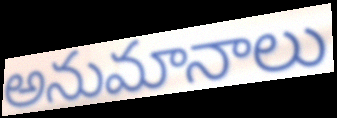
అనుమానాలు